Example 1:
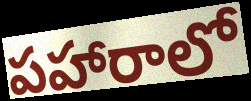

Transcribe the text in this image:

పహారాలో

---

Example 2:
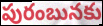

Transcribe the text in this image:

పురంబునకు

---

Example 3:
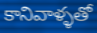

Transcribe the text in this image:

కానివాళ్ళతో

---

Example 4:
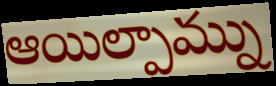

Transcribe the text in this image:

ఆయిల్పామ్ను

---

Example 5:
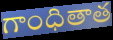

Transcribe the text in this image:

గాంధితాత